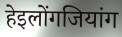
हेइलोंगजियांग